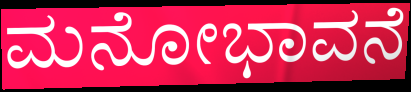
ಮನೋಭಾವನೆ